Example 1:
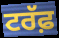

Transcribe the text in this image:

ਟਰੱਫ਼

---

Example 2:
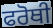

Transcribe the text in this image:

ਫਰੋਥੀ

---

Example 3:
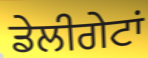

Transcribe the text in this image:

ਡੇਲੀਗੇਟਾਂ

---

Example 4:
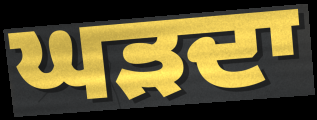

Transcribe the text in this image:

ਘੜਦਾ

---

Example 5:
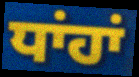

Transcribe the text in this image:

ਧਾਂਹਾਂ